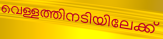
വെള്ളത്തിനടിയിലേക്ക്